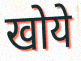
खोये